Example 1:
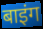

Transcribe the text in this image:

बाइंग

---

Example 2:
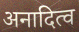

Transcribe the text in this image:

अनादित्व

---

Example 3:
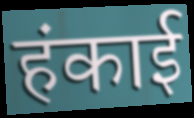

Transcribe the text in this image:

हंकाई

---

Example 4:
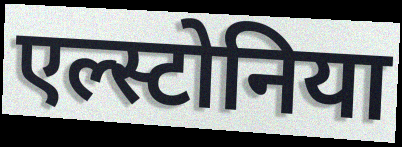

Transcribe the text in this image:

एल्स्टोनिया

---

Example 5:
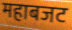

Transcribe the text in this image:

महाबजट